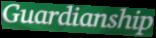
Guardianship